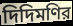
দিদিমণির